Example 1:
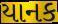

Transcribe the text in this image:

યાનક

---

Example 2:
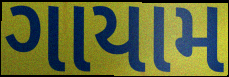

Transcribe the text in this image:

ગાયામ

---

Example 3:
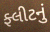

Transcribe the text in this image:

ફ્લીટનું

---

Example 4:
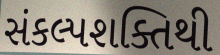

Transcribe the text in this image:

સંકલ્પશક્તિથી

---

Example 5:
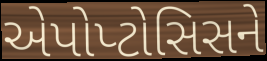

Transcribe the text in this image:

એપોપ્ટોસિસને